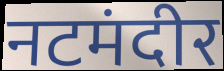
नटमंदीर